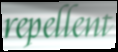
repellent